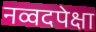
नव्वदपेक्षा